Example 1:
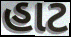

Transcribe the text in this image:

હાટ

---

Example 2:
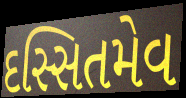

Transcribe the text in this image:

દસ્સિતમેવ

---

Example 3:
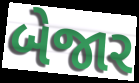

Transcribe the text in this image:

બેજાર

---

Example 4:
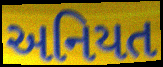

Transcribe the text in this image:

અનિયત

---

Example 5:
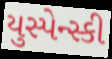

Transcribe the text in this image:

યુસ્પેન્સ્કી